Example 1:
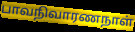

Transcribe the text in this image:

பாவநிவாரணநாள்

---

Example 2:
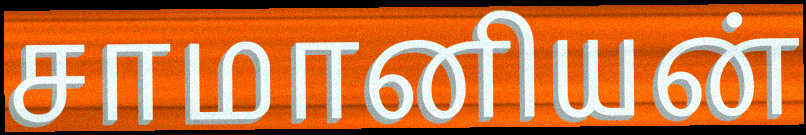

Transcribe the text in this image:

சாமானியன்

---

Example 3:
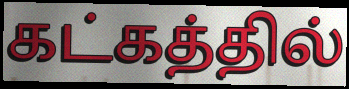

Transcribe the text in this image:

கட்கத்தில்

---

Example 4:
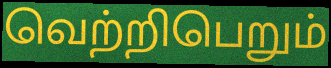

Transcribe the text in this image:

வெற்றிபெறும்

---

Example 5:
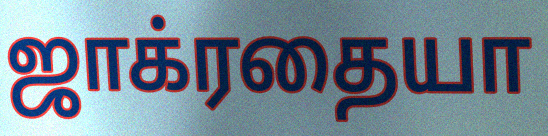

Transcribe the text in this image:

ஜாக்ரதையா